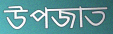
উপজাত